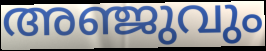
അഞ്ജുവും